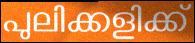
പുലിക്കളിക്ക്